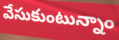
వేసుకుంటున్నాం